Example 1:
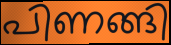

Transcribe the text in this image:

പിണങ്ങി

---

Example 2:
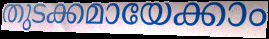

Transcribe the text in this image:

തുടക്കമായേക്കാം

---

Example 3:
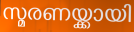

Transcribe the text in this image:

സ്മരണയ്ക്കായി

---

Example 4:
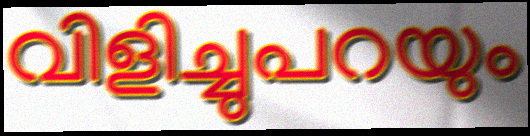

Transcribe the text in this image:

വിളിച്ചുപറയും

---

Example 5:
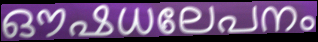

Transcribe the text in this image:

ഔഷധലേപനം